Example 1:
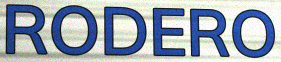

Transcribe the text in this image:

RODERO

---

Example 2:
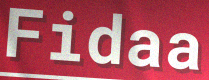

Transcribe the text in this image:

Fidaa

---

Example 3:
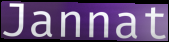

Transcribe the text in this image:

Jannat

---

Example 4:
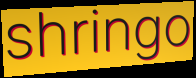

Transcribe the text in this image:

shringo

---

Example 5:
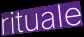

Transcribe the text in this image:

rituale